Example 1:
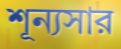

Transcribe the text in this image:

শূন্যসার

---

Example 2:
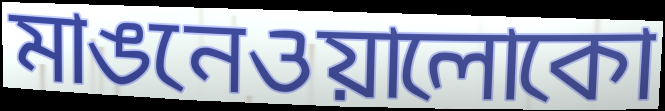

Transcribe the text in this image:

মাঙনেওয়ালোকো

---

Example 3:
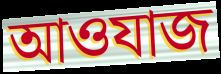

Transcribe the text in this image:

আওযাজ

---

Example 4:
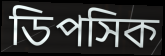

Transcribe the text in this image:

ডিপসিক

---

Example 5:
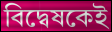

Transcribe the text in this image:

বিদ্বেষকেই